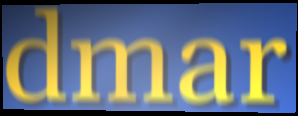
dmar